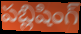
పబ్లిషింగ్